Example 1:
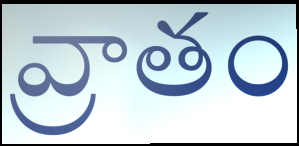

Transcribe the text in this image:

వ్రాతం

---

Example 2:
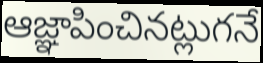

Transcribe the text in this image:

ఆజ్ఞాపించినట్లుగనే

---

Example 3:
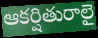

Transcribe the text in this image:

ఆకర్షితురాలై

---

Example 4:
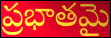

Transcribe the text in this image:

ప్రభాతమై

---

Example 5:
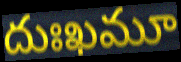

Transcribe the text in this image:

దుఃఖమూ